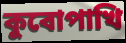
কুবোপাখি